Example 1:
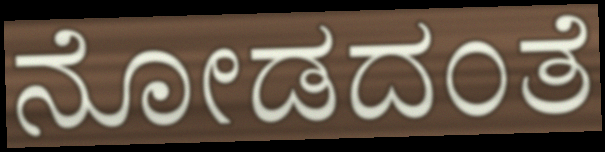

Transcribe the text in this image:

ನೋಡದಂತೆ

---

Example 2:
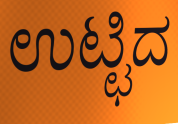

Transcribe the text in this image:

ಉಟ್ಟಿದ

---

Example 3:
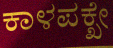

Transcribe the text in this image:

ಕಾಳಪಕ್ಖೇ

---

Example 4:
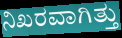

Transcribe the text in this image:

ನಿಖರವಾಗಿತ್ತು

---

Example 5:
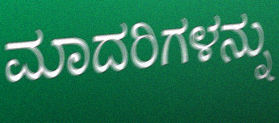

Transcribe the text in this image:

ಮಾದರಿಗಳನ್ನು